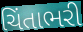
ચિંતાભરી